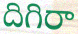
దిగిరా